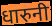
धारुनी